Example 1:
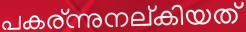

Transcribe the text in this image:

പകര്ന്നുനല്കിയത്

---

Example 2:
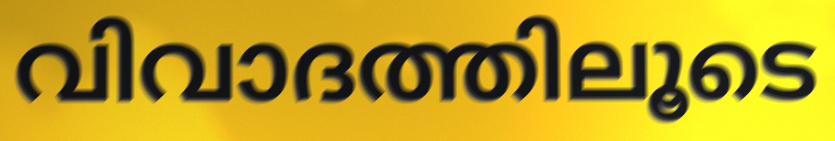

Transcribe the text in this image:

വിവാദത്തിലൂടെ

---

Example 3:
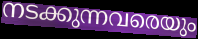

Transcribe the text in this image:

നടക്കുന്നവരെയും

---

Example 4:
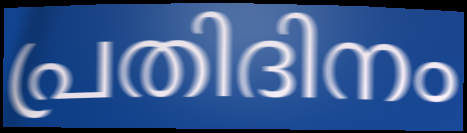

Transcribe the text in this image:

പ്രതിദിനം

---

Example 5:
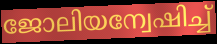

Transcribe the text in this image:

ജോലിയന്വേഷിച്ച്